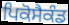
ਪਿਕੋਸੈਕੰਡ